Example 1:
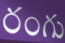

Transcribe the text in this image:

రంగు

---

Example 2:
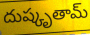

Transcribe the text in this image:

దుష్కృతామ్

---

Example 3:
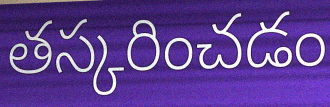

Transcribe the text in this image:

తస్కరించడం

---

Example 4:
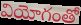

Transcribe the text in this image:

వియోగంతో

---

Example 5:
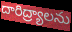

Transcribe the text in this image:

దారిద్ర్యాలను